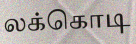
லக்கொடி